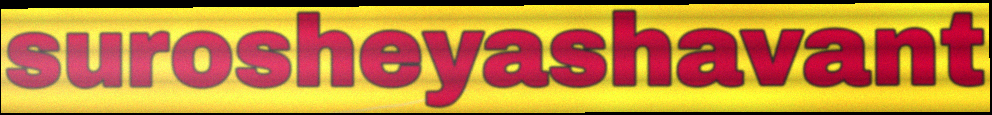
surosheyashavant